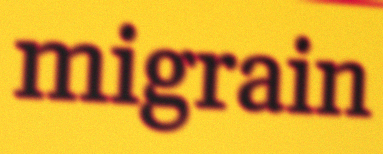
migrain